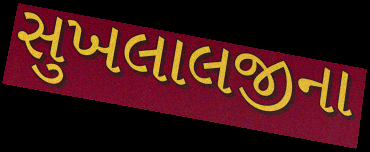
સુખલાલજીના